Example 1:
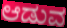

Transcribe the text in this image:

ಆಡುವ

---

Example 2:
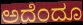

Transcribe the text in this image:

ಅದೆಂದೂ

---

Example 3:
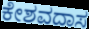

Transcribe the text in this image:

ಕೇಶವದಾಸ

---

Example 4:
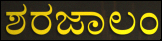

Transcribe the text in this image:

ಶರಜಾಲಂ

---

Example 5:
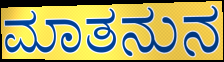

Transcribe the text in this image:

ಮಾತನುನ